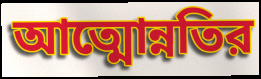
আত্মোন্নতির